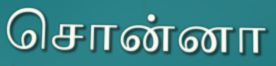
சொன்னா